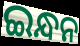
ଇନ୍ଧନ